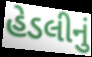
હેડલીનું